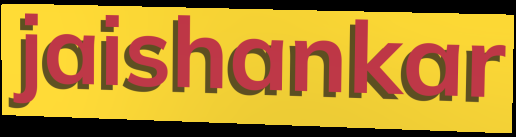
jaishankar